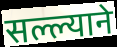
सल्ल्याने